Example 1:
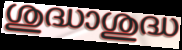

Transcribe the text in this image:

ശുദ്ധാശുദ്ധ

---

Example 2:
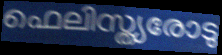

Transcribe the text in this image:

ഫെലിസ്ത്യരോടു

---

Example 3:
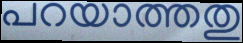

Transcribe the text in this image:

പറയാത്തതു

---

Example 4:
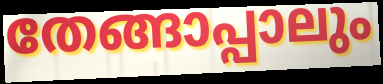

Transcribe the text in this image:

തേങ്ങാപ്പാലും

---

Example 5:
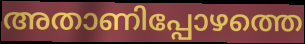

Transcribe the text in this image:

അതാണിപ്പോഴത്തെ